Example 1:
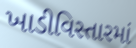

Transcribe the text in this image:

ખાડીવિસ્તારમાં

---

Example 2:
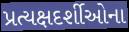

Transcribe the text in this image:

પ્રત્યક્ષદર્શીઓના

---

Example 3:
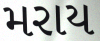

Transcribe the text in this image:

મરાય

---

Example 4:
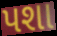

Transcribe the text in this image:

પશા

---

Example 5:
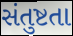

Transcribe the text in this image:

સંતુષ્ટતા